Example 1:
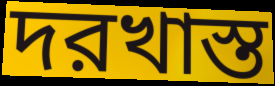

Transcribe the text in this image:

দরখাস্ত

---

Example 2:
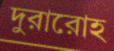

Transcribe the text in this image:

দুরারোহ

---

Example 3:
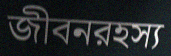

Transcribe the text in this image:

জীবনরহস্য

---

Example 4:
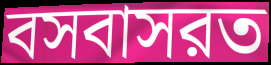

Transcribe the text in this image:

বসবাসরত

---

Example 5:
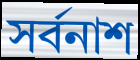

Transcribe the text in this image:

সর্বনাশ